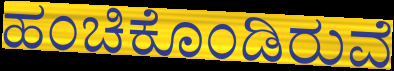
ಹಂಚಿಕೊಂಡಿರುವೆ